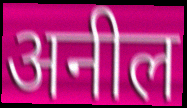
अनील